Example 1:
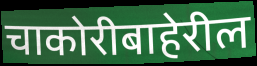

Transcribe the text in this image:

चाकोरीबाहेरील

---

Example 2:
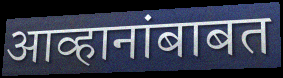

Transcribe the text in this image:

आव्हानांबाबत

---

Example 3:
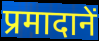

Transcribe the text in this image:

प्रमादानें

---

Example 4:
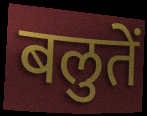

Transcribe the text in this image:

बलुतें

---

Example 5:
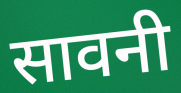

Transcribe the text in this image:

सावनी